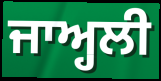
ਜਾਅ੍ਹਲੀ